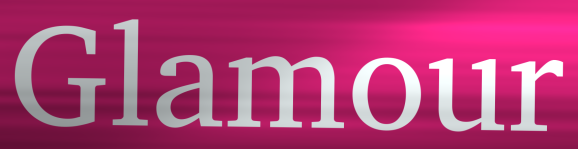
Glamour